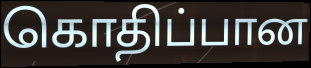
கொதிப்பான